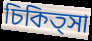
চিকিত্সা